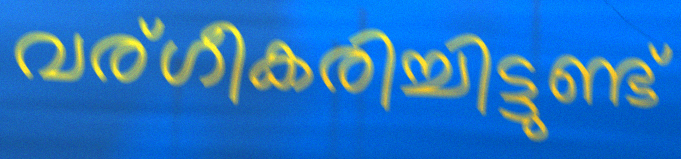
വര്ഗീകരിച്ചിട്ടുണ്ട്